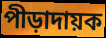
পীড়াদায়ক